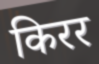
किरर